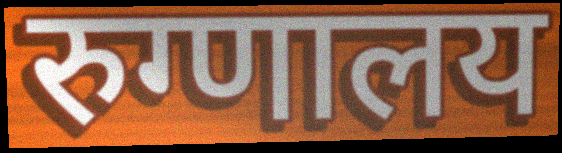
रुग्णालय